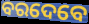
ବରଦେବେ